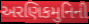
અરણિકમુનિની